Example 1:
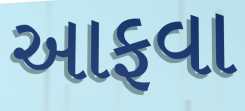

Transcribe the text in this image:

આફવા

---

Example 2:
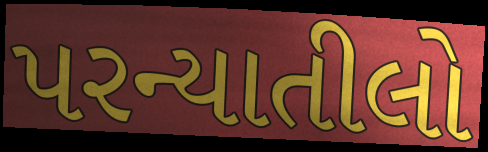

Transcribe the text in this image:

પરન્યાતીલો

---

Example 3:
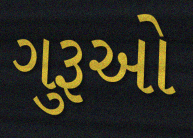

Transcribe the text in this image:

ગુરૂઓ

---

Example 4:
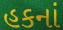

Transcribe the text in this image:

હકનાં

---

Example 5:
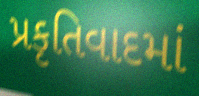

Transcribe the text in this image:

પ્રકૃતિવાદમાં